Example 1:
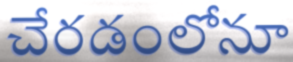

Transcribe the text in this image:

చేరడంలోనూ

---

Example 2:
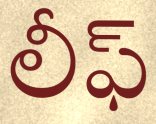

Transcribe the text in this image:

లీఫ్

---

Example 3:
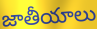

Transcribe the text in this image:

జాతీయాలు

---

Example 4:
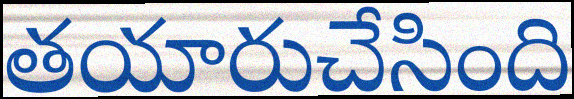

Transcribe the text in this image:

తయారుచేసింది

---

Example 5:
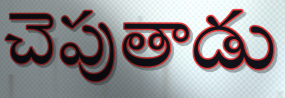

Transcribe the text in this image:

చెపుతాడు